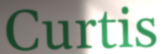
Curtis